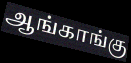
ஆங்காங்கு